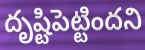
దృష్టిపెట్టిందని